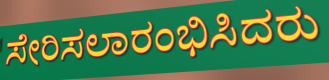
ಸೇರಿಸಲಾರಂಭಿಸಿದರು